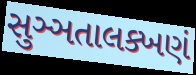
સુઞ્ઞતાલક્ખણં